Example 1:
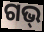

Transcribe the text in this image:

ଗଭ୍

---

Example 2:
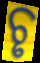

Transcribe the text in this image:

ଚୃ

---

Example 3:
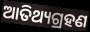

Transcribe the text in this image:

ଆତିଥ୍ୟଗ୍ରହଣ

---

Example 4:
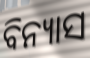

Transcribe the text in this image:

ବିନ୍ୟାସ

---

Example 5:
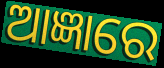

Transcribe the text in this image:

ଆଜ୍ଞାରେ